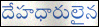
దేహధారులైన